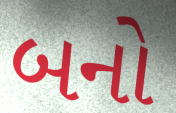
બનો